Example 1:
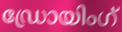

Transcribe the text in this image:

ഡ്രോയിംഗ്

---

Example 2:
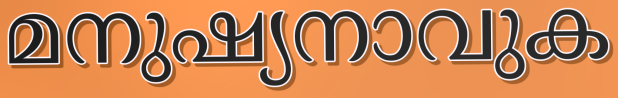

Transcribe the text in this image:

മനുഷ്യനാവുക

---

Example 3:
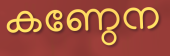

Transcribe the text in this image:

കണ്ഠേന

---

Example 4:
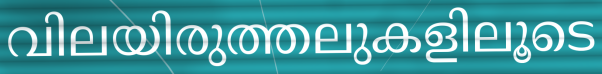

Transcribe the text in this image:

വിലയിരുത്തലുകളിലൂടെ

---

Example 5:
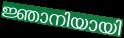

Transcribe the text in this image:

ജ്ഞാനിയായി